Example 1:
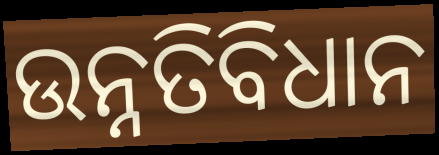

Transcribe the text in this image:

ଉନ୍ନତିବିଧାନ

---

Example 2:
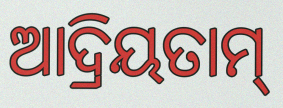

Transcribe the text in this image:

ଆଦ୍ରିୟତାମ୍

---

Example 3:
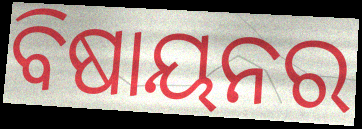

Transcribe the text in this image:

ବିଷାୟନର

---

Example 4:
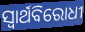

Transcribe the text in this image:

ସ୍ବାର୍ଥବିରୋଧୀ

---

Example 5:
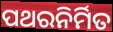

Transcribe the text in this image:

ପଥରନିର୍ମିତ